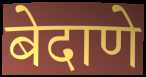
बेदाणे